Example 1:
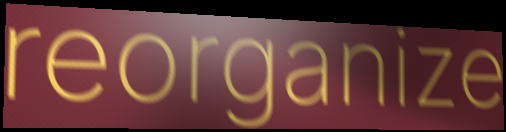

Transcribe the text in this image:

reorganize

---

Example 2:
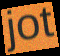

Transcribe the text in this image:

jot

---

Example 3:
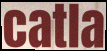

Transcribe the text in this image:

catla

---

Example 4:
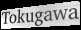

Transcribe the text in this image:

Tokugawa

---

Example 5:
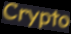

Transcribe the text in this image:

Crypto